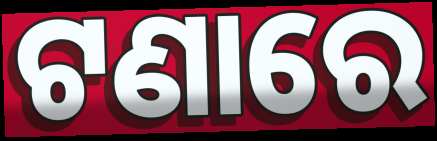
ଟଣାରେ